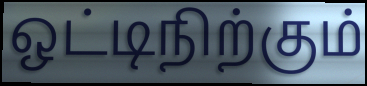
ஒட்டிநிற்கும்